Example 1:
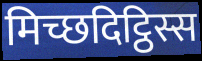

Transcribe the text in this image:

मिच्छदिट्ठिस्स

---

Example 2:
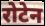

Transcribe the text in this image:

रोटेन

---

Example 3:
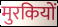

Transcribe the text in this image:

मुरकियों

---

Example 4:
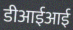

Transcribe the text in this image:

डीआईआई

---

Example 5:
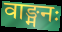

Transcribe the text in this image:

वाङ्मनः